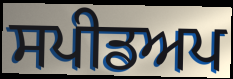
ਸਪੀਡਅਪ